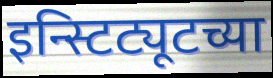
इन्स्टिट्यूटच्या